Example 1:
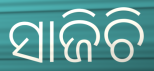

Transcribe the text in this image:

ସାଜିଚି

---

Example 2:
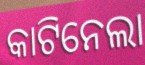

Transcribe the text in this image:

କାଟିନେଲା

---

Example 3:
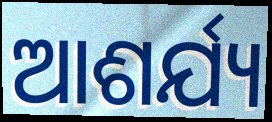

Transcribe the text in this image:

ଆଶର୍ଯ୍ୟ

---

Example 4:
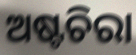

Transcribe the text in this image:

ଅଷ୍ଟଚିରା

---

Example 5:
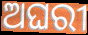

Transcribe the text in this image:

ଅଘରୀ